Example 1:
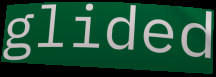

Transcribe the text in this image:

glided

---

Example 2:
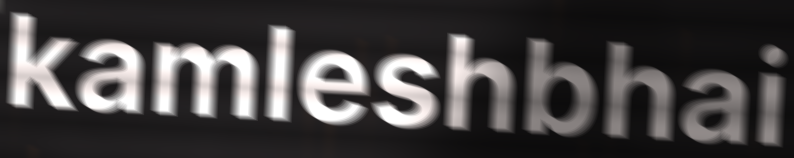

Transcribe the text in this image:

kamleshbhai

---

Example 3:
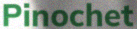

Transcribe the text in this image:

Pinochet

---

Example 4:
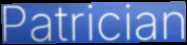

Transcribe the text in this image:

Patrician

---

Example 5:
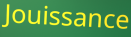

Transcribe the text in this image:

Jouissance